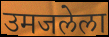
उमजलेला